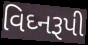
વિઘ્નરૂપી